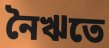
নৈঋতে